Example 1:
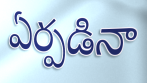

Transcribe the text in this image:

ఏర్పడినా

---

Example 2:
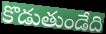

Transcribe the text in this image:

కొడుతుండేది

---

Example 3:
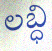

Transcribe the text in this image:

లబ్ధి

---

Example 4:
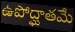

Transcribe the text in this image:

ఉపోద్ఘాతమే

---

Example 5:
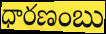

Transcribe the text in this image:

ధారణంబు